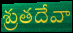
శ్రుతదేవా